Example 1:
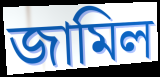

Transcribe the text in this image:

জামিল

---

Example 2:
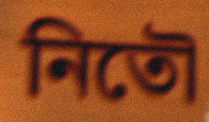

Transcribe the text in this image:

নিতৌ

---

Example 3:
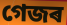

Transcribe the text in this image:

গেজৰ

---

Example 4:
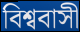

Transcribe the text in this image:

বিশ্ববাসী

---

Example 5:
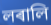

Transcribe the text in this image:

লৰালি